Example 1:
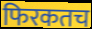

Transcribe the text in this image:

फिरकतच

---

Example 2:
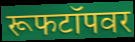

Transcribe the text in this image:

रूफटॉपवर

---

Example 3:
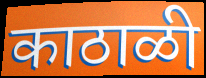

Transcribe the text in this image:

काठाळी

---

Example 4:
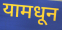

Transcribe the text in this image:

यामधून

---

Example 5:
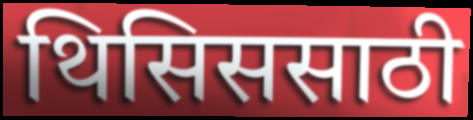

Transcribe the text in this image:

थिसिससाठी